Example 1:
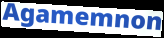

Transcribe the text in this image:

Agamemnon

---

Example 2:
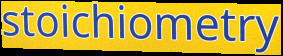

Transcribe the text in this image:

stoichiometry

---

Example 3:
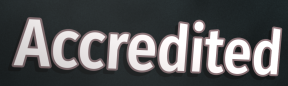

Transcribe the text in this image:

Accredited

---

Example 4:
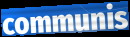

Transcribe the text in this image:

communis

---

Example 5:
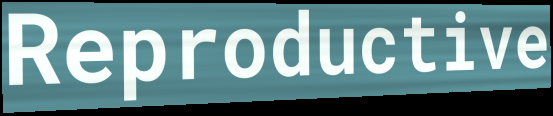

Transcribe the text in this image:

Reproductive